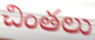
చింతలు